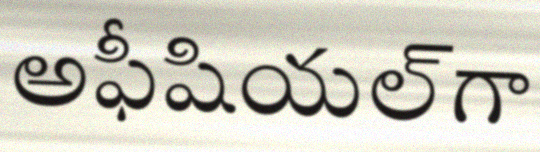
అఫీషియల్‌గా